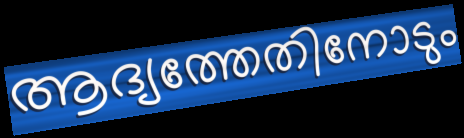
ആദ്യത്തേതിനോടും